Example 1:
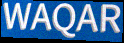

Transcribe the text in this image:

WAQAR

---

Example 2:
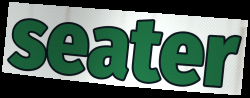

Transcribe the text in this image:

seater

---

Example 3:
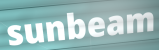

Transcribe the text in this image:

sunbeam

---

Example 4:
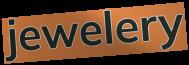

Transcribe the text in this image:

jewelery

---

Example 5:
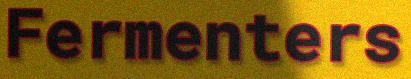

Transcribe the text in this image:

Fermenters